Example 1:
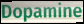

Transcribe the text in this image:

Dopamine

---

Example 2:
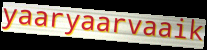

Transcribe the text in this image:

yaaryaarvaaik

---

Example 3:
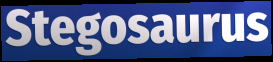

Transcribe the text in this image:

Stegosaurus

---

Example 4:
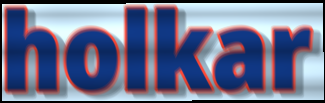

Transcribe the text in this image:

holkar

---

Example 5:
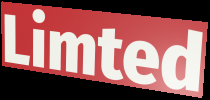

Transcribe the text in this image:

Limted